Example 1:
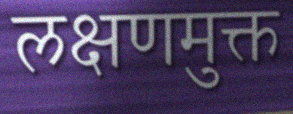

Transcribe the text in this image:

लक्षणमुक्त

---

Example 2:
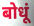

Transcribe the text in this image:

बोधूं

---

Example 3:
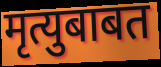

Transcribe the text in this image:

मृत्युबाबत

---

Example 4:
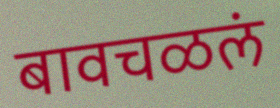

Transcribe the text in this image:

बावचळलं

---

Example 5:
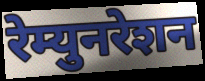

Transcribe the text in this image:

रेम्युनरेशन